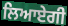
ਲਿਆਏਗੀ